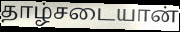
தாழ்சடையான்